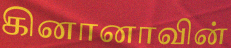
கினானாவின்